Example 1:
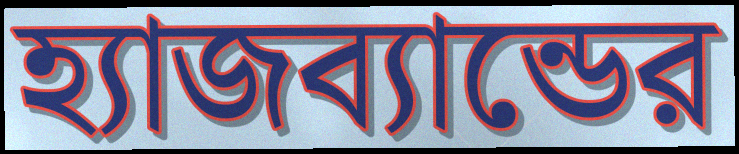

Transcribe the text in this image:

হ্যাজব্যান্ডের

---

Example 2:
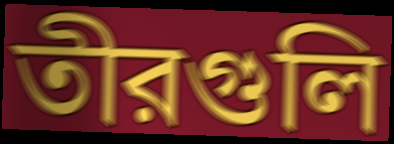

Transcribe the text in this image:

তীরগুলি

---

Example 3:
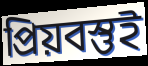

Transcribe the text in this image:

প্রিয়বস্তুই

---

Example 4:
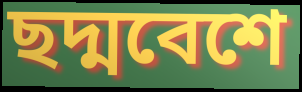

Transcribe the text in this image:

ছদ্মবেশে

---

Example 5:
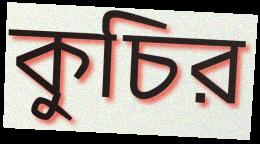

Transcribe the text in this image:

কুচির